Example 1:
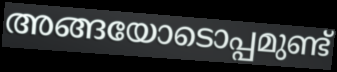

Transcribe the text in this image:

അങ്ങയോടൊപ്പമുണ്ട്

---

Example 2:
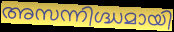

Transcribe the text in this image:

അസന്നിഗ്ദ്ധമായി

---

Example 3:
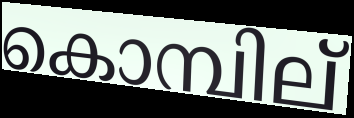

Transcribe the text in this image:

കൊമ്പില്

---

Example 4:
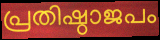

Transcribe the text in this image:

പ്രതിഷ്ഠാജപം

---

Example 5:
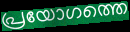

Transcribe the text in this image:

പ്രയോഗത്തെ